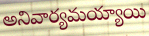
అనివార్యమయ్యాయి